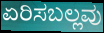
ಏರಿಸಬಲ್ಲವು